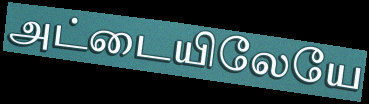
அட்டையிலேயே